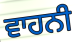
ਵਾਹਨੀ